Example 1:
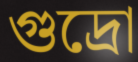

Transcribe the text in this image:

গুদ্ৰো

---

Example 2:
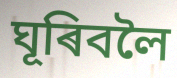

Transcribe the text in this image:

ঘূৰিবলৈ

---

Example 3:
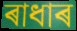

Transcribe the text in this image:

ৰাধাৰ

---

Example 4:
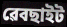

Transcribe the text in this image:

ৱেবছাইট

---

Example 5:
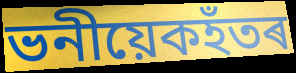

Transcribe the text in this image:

ভনীয়েকহঁতৰ